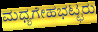
ಮಧ್ಯಗೇಹಭಟ್ಟರು